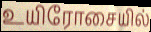
உயிரோசையில்